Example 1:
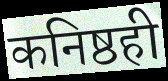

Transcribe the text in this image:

कनिष्ठही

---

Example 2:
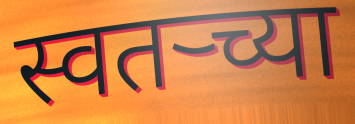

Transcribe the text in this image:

स्वतर्‍च्या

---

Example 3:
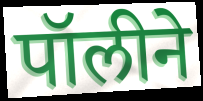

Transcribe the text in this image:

पॉलीने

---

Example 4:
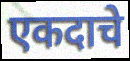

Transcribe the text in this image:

एकदाचे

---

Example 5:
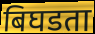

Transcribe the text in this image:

बिघडता